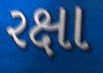
રક્ષા